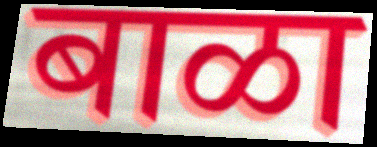
बाळा